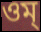
ওম্